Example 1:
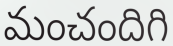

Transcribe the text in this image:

మంచందిగి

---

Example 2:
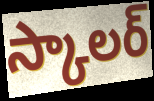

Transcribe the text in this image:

స్కాలర్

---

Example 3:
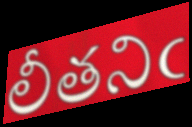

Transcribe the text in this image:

లీతనిఁ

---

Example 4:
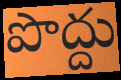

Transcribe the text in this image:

పొద్దు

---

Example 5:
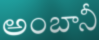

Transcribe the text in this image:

అంబానీ